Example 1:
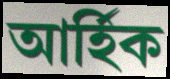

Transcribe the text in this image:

আৰ্হিক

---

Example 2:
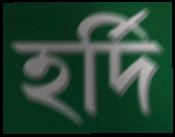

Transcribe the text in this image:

হৰ্দি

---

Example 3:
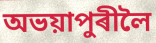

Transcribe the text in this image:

অভয়াপুৰীলৈ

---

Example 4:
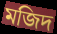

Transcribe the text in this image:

মজিদ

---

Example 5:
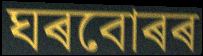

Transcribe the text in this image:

ঘৰবোৰৰ